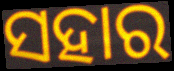
ସହାର